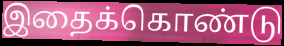
இதைக்கொண்டு